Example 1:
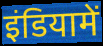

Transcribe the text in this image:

इंडियामें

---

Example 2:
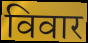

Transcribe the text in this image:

विवार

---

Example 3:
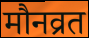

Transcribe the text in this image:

मौनव्रत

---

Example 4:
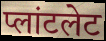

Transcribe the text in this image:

प्लांटलेट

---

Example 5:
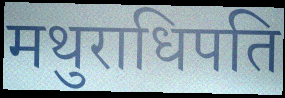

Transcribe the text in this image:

मथुराधिपति